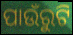
ପାଉଁରୁଟି